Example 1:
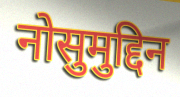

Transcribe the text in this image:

नोसुमुद्दिन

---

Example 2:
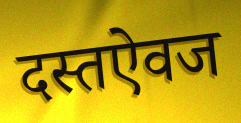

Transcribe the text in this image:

दस्तऐवज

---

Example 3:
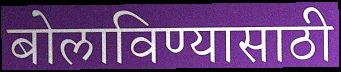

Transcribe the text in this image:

बोलाविण्यासाठी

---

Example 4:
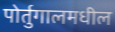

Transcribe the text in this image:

पोर्तुगालमधील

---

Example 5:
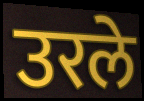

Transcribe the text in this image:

उरले